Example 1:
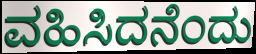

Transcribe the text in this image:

ವಹಿಸಿದನೆಂದು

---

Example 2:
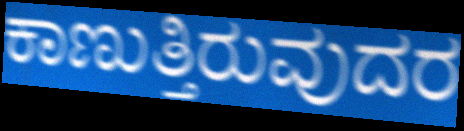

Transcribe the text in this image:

ಕಾಣುತ್ತಿರುವುದರ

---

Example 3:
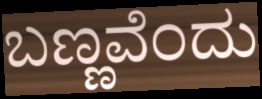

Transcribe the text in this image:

ಬಣ್ಣವೆಂದು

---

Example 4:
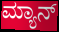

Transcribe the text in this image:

ಮ್ಯಾನ್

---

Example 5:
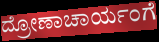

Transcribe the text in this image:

ದ್ರೋಣಾಚಾರ್ಯಂಗೆ